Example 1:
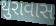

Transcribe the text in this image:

થુરાવાસ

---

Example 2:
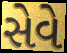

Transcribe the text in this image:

સેવે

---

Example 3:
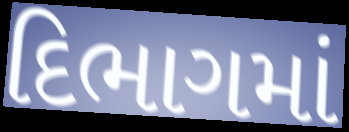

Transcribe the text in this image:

દિભાગમાં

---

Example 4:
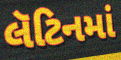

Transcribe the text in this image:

લૅટિનમાં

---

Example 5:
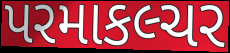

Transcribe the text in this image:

પરમાકલ્ચર